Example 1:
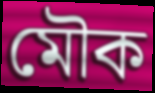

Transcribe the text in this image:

মৌক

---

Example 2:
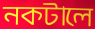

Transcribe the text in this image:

নকটালে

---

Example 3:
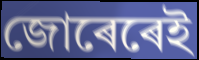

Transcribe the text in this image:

জোৰেৰেই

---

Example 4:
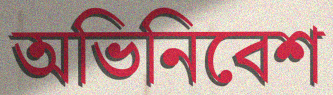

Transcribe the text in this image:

অভিনিবেশ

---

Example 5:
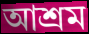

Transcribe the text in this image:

আশ্ৰম